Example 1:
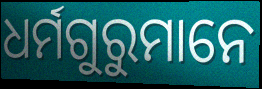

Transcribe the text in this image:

ଧର୍ମଗୁରୁମାନେ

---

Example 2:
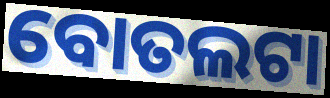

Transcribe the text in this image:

ବୋତଲଟା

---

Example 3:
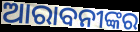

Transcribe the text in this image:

ଆରାବନୀଙ୍କର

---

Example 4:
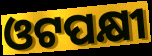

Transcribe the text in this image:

ଓଟପକ୍ଷୀ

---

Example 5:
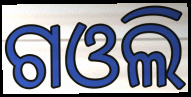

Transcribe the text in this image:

ଗଓଲି